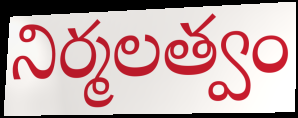
నిర్మలత్వం